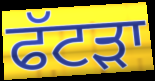
ਫੱਟੜਾ